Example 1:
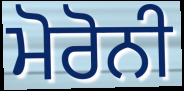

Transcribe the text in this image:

ਮੋਰੋਨੀ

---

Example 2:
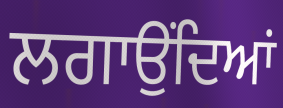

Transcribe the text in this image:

ਲਗਾਉੰਦਿਆਂ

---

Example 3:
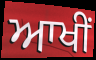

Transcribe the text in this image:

ਆਖੀਂ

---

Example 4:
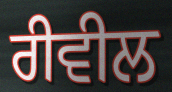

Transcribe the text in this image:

ਰੀਵੀਲ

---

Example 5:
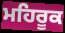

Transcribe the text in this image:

ਮਹਿਰੂਕ